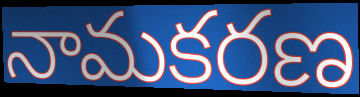
నామకరణ